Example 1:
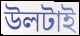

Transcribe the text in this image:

উলটাই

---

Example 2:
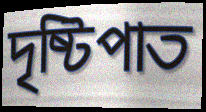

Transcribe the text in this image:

দৃষ্টিপাত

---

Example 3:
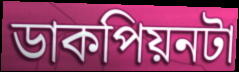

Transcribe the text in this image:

ডাকপিয়নটা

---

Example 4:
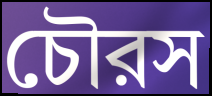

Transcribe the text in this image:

চৌরস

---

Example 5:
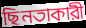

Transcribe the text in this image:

ছিনতাকারী